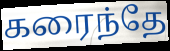
கரைந்தே